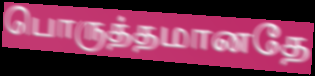
பொருத்தமானதே